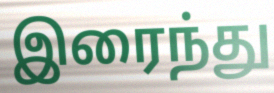
இரைந்து